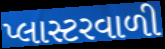
પ્લાસ્ટરવાળી